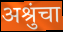
अश्रुंचा